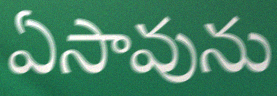
ఏసావును